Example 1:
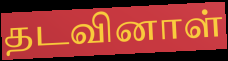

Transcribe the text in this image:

தடவினாள்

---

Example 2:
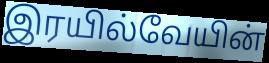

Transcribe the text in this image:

இரயில்வேயின்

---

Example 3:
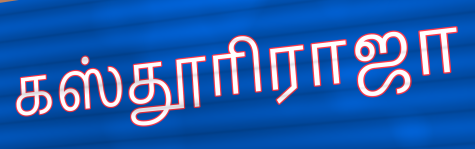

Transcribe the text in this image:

கஸ்தூரிராஜா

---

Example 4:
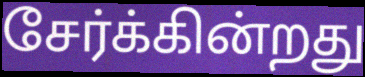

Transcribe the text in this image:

சேர்க்கின்றது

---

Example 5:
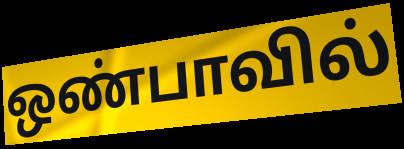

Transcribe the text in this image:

ஒண்பாவில்